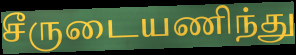
சீருடையணிந்து